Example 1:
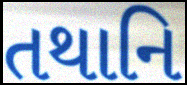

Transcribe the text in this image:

તથાનિ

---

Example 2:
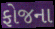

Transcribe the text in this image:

ફોજના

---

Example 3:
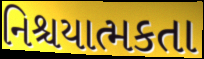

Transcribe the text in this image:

નિશ્ચયાત્મકતા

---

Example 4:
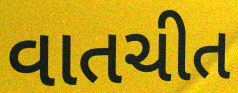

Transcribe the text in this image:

વાતચીત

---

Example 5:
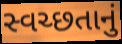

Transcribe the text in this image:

સ્વચ્છતાનું